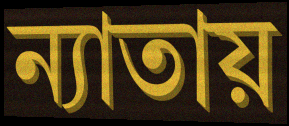
ন্যাতায়